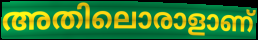
അതിലൊരാളാണ്